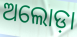
ଅଲୋଡ଼ା